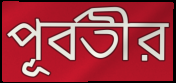
পূর্বতীর